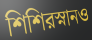
শিশিরস্নানও